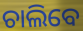
ଚାଲିବେ